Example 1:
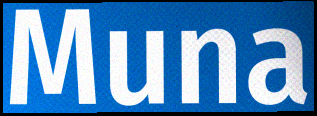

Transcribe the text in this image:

Muna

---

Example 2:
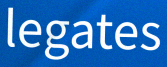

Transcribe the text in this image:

legates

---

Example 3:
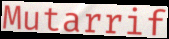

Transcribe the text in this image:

Mutarrif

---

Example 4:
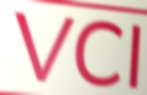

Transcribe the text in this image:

VCI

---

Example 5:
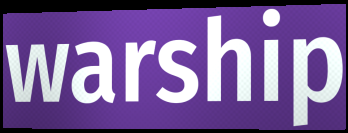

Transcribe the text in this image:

warship